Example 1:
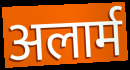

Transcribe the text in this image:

अलार्म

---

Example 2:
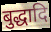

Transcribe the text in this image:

बुद्धादि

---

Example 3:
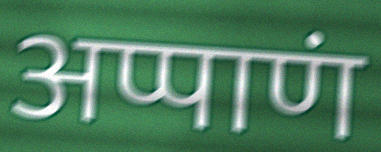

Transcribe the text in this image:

अप्पाणं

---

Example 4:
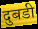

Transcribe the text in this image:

दुबडी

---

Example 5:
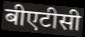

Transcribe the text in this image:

बीएटीसी